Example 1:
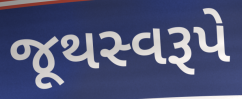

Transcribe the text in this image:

જૂથસ્વરૂપે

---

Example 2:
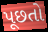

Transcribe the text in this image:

પૂછતો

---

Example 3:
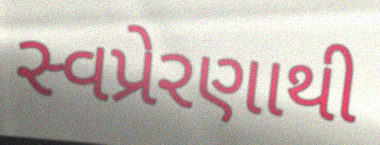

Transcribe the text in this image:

સ્વપ્રેરણાથી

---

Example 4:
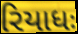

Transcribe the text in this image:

રિયાધઃ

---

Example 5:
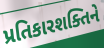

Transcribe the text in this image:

પ્રતિકારશક્તિને